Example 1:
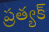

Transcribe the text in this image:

ప్రత్యక్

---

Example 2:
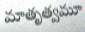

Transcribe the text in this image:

మాతృత్వమూ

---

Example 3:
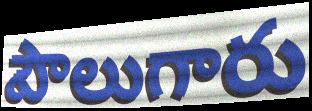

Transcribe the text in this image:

పౌలుగారు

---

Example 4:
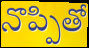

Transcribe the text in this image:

నొప్పితో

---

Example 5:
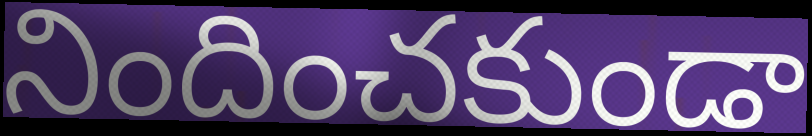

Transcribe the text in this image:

నిందించకుండా